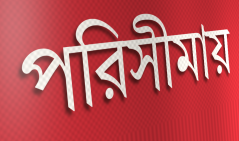
পরিসীমায়